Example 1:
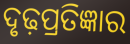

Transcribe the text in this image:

ଦୃଢ଼ପ୍ରତିଜ୍ଞାର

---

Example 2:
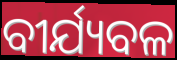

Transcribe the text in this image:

ବୀର୍ଯ୍ୟବଳ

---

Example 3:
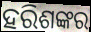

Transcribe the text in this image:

ହରିଶଙ୍କର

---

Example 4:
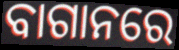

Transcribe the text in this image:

ବାଗାନରେ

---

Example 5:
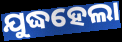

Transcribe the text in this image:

ଯୁଦ୍ଧହେଲା